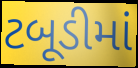
ટબૂડીમાં